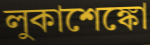
লুকাশেঙ্কো